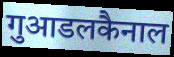
गुआडलकैनाल